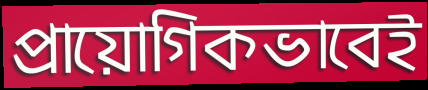
প্রায়োগিকভাবেই